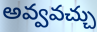
అవ్వవచ్చు